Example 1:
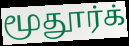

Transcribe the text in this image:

மூதூர்க்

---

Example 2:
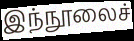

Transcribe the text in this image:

இந்நூலைச்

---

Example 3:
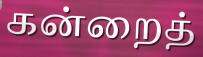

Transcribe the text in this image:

கன்றைத்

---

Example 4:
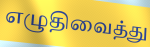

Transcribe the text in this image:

எழுதிவைத்து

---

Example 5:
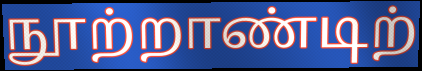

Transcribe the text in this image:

நூற்றாண்டிற்